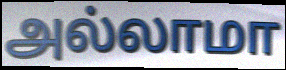
அல்லாமா